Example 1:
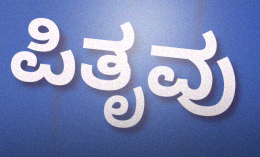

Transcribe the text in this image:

ಪಿತೃವು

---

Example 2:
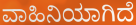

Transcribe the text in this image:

ವಾಹಿನಿಯಾಗಿದೆ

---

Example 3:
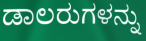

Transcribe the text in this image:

ಡಾಲರುಗಳನ್ನು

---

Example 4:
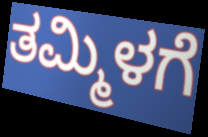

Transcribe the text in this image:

ತಮ್ಮಿಳಗೆ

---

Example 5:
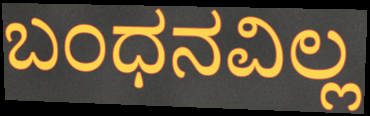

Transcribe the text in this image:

ಬಂಧನವಿಲ್ಲ